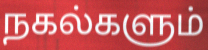
நகல்களும்